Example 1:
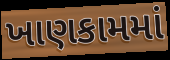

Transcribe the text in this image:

ખાણકામમાં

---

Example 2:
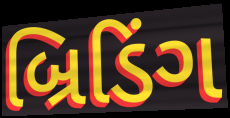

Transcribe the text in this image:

બ્રિડિંગ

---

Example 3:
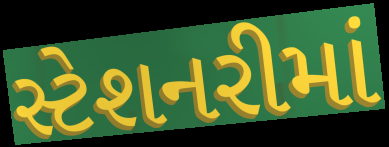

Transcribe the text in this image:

સ્ટેશનરીમાં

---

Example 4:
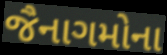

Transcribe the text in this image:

જૈનાગમોના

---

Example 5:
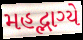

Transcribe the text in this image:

મહદ્ભાગ્યે